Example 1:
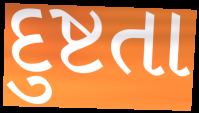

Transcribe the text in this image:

દુષ્ટતા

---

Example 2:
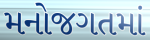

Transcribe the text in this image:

મનોજગતમાં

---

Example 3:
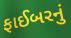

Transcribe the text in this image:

ફાઈબરનું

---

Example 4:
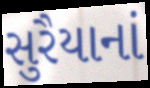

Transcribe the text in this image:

સુરૈયાનાં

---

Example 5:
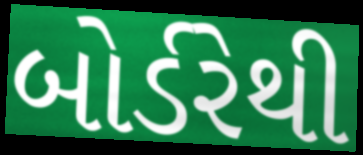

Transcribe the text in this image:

બોર્ડરેથી